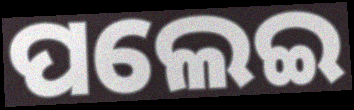
ପଲେଇ